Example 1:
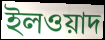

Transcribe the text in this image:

ইলওয়াদ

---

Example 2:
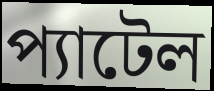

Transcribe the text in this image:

প্যাটেল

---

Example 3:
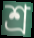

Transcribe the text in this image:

শ্র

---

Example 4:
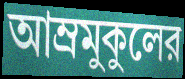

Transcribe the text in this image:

আম্রমুকুলের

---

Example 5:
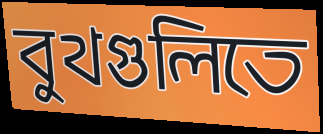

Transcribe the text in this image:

বুথগুলিতে